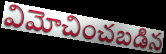
విమోచించబడిన